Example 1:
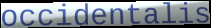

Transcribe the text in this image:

occidentalis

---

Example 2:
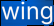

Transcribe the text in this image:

wing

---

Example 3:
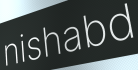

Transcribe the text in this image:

nishabd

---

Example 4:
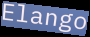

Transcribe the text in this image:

Elango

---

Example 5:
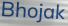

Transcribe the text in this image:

Bhojak